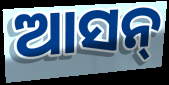
ଆସନ୍